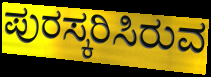
ಪುರಸ್ಕರಿಸಿರುವ